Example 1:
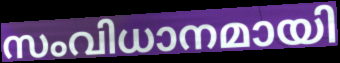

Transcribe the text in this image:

സംവിധാനമായി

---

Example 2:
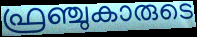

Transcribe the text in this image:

ഫ്രഞ്ചുകാരുടെ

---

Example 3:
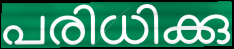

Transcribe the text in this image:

പരിധിക്കു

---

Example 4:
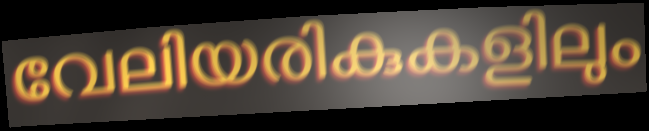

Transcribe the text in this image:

വേലിയരികുകളിലും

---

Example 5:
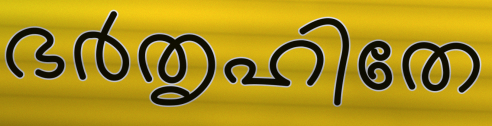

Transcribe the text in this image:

ഭർതൃഹിതേ